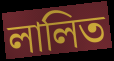
লালিত